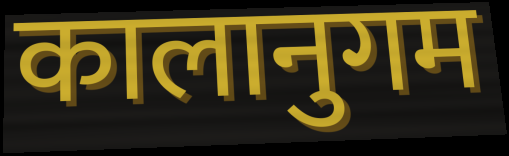
कालानुगम